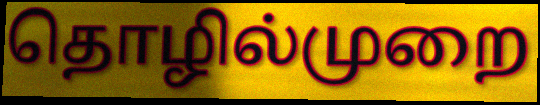
தொழில்முறை